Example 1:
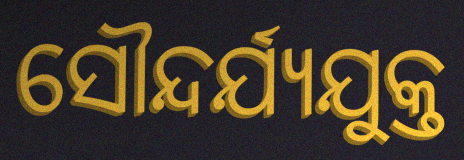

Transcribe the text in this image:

ସୌନ୍ଦର୍ଯ୍ୟଯୁକ୍ତ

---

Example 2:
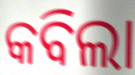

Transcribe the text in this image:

କବିଲା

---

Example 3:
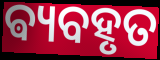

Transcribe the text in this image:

ଵ୍ୟବହୃତ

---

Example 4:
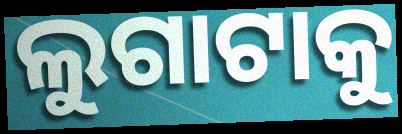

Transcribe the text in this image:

ଲୁଗାଟାକୁ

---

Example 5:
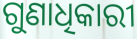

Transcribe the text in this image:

ଗୁଣାଧିକାରୀ